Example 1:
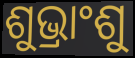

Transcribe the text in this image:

ଶୁଭ୍ରାଂଶୁ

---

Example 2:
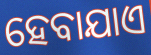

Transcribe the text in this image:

ହେବାଯାଏ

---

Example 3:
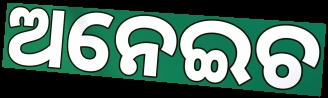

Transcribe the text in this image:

ଅନେଇଚ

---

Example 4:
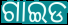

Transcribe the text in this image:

ଗାଇଡ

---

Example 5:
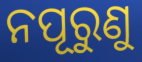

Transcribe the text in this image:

ନପୂରୁଣୁ